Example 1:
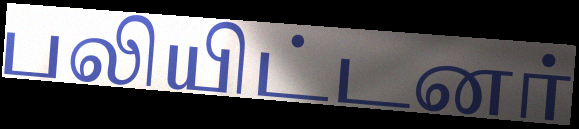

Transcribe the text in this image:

பலியிட்டனர்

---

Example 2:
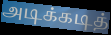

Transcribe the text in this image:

அடிக்கடித்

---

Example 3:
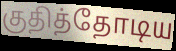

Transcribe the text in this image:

குதித்தோடிய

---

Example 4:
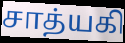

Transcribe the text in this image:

சாத்யகி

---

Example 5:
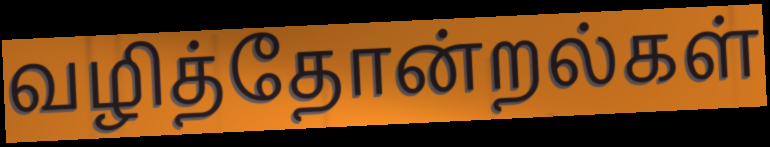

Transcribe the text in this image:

வழித்தோன்றல்கள்